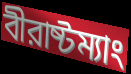
বীরাষ্টম্যাং